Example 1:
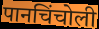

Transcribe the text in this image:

पानचिंचोली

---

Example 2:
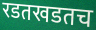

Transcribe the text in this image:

रडतखडतच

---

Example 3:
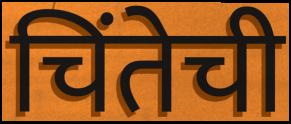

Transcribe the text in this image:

चिंतेची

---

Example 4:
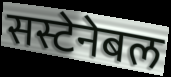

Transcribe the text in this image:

सस्टेनेबल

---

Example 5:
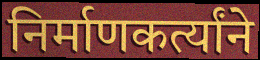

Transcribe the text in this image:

निर्माणकर्त्यांने